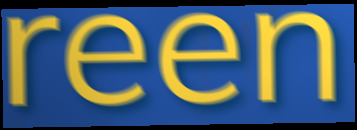
reen